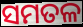
ସମତଳ